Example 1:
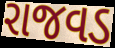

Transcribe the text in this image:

રાજવડ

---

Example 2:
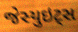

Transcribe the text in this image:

જેસ્યુઇટ્સ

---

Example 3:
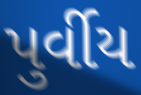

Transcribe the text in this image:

પુર્વીય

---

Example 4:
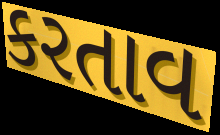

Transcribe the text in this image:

કરતાવ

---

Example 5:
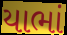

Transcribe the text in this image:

યાભાં